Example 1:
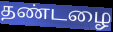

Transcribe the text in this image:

தண்டழை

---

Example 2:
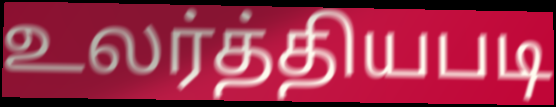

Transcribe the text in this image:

உலர்த்தியபடி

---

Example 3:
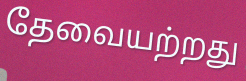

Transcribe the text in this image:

தேவையற்றது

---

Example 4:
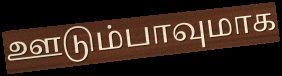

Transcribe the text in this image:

ஊடும்பாவுமாக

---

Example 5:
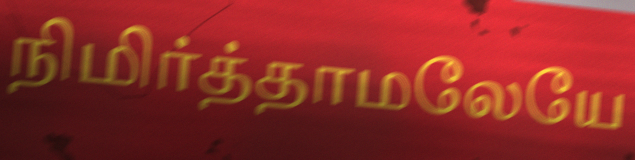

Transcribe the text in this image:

நிமிர்த்தாமலேயே